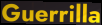
Guerrilla